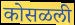
कोसळली